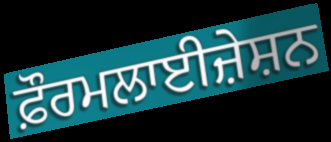
ਫ਼ੌਰਮਲਾਈਜ਼ੇਸ਼ਨ